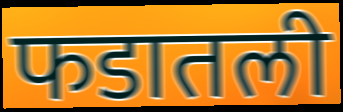
फडातली